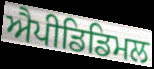
ਐਪੀਡਿਡਿਮਲ